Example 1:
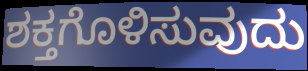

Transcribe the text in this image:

ಶಕ್ತಗೊಳಿಸುವುದು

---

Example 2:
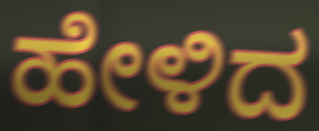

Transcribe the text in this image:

ಹೇಳಿದ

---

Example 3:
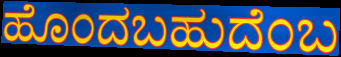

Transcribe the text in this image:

ಹೊಂದಬಹುದೆಂಬ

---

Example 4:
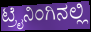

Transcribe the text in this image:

ಟ್ರೈನಿಂಗಿನಲ್ಲಿ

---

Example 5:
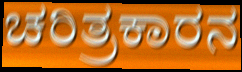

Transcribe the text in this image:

ಚರಿತ್ರಕಾರನ